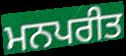
ਮਨਪਰੀਤ